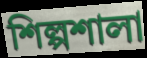
শিল্পশালা